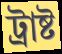
ট্রাষ্ট